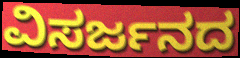
ವಿಸರ್ಜನದ